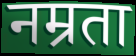
नम्रता